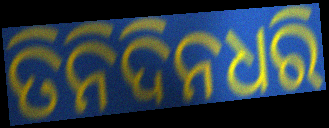
ତିନିଦିନଧରି